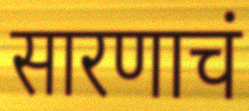
सारणाचं